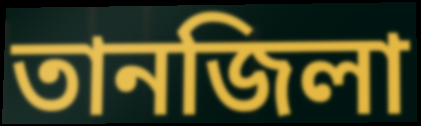
তানজিলা